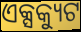
ଏକ୍ସକ୍ୟୁଟ